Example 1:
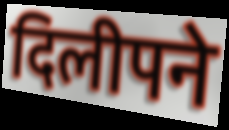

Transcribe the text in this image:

दिलीपने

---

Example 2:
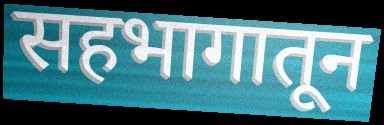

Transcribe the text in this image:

सहभागातून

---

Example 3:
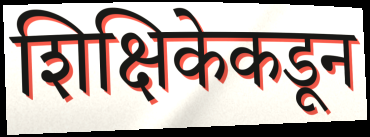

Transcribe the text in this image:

शिक्षिकेकडून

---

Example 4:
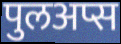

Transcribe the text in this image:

पुलअप्स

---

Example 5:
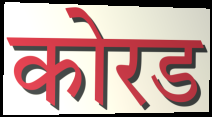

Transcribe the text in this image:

कोरड